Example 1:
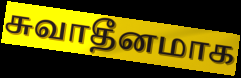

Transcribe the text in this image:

சுவாதீனமாக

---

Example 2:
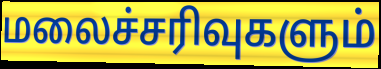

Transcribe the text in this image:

மலைச்சரிவுகளும்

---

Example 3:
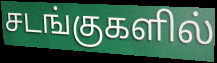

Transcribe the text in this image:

சடங்குகளில்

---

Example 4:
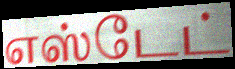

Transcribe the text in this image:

எஸ்டேட்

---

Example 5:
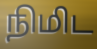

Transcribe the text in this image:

நிமிட